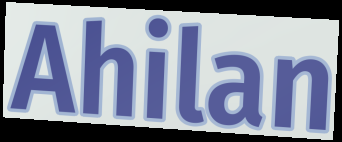
Ahilan